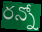
రన్నో